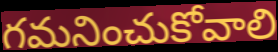
గమనించుకోవాలి